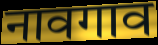
नावगाव